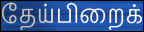
தேய்பிறைக்